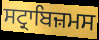
ਸਟ੍ਰਾਬਿਜ਼ਮਸ